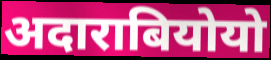
अदाराबियोयो